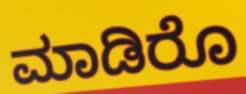
ಮಾಡಿರೊ